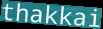
thakkai